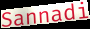
Sannadi